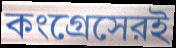
কংগ্রেসেরই